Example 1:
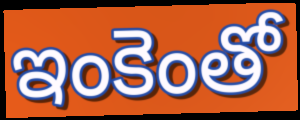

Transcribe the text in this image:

ఇంకెంతో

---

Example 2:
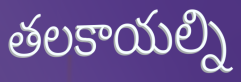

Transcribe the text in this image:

తలకాయల్ని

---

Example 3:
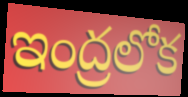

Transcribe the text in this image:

ఇంద్రలోక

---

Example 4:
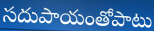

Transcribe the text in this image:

సదుపాయంతోపాటు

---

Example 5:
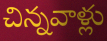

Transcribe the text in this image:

చిన్నవాళ్లు